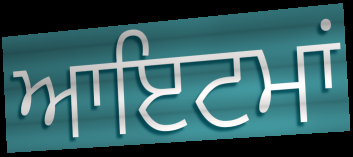
ਆਇਟਮਾਂ